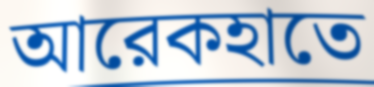
আরেকহাতে